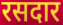
रसदार